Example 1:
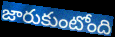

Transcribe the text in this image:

జారుకుంటోంది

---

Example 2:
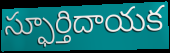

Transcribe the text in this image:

స్ఫూర్తిదాయక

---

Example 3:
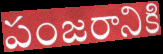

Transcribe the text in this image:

పంజరానికి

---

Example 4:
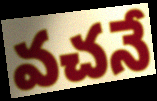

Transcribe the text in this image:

వచనే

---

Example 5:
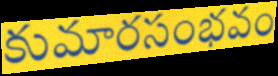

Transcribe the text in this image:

కుమారసంభవం